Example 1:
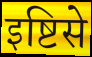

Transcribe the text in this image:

इष्टिसे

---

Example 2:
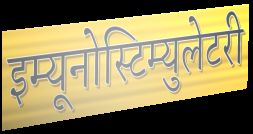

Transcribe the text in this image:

इम्यूनोस्टिम्युलेटरी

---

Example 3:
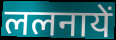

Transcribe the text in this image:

ललनायें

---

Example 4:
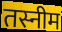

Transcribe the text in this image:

तस्नीम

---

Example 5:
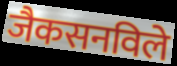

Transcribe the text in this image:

जैकसनविले